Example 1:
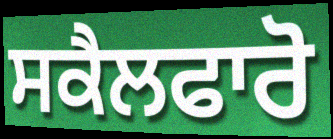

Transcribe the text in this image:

ਸਕੈਲਫਾਰੋ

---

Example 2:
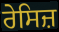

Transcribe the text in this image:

ਰੇਸਿਜ਼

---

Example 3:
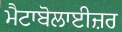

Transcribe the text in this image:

ਮੈਟਾਬੋਲਾਈਜ਼ਰ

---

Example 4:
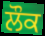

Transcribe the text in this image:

ਲੌਕ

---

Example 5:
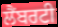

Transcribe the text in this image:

ਲੈਂਬਰਟੀ